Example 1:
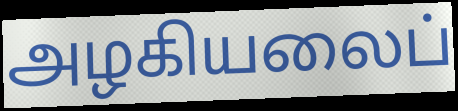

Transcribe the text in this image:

அழகியலைப்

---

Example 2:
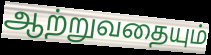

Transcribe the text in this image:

ஆற்றுவதையும்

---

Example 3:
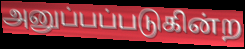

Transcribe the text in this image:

அனுப்பப்படுகின்ற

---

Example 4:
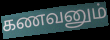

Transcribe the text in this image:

கணவனும்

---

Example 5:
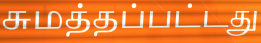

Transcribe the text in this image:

சுமத்தப்பட்டது